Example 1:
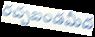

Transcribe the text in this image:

రచ్చబండమీద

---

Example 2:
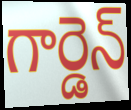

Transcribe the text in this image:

గార్డెన్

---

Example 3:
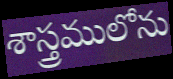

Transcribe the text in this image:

శాస్త్రములోను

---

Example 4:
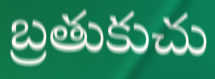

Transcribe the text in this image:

బ్రతుకుచు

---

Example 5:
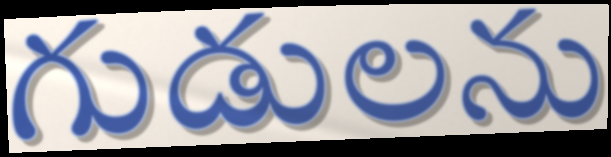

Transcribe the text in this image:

గుడులను